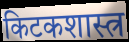
किटकशास्‍त्र